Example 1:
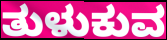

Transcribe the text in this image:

ತುಳುಕುವ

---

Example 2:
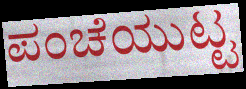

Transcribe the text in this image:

ಪಂಚೆಯುಟ್ಟ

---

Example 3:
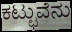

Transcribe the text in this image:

ಕಟ್ಟುವೆನು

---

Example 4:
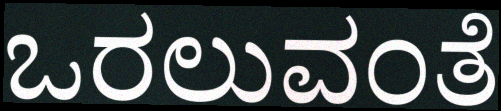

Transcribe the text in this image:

ಒರಲುವಂತೆ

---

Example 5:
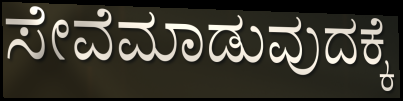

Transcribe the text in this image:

ಸೇವೆಮಾಡುವುದಕ್ಕೆ